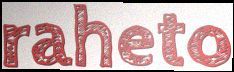
raheto